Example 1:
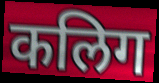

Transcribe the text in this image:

कलिग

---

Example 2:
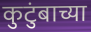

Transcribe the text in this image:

कुटुंबाच्या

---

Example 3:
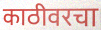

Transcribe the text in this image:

काठीवरचा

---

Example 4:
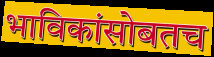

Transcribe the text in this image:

भाविकांसोबतच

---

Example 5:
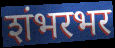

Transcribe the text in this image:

शंभरभर